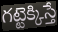
గట్టెక్కిస్తే